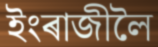
ইংৰাজীলৈ